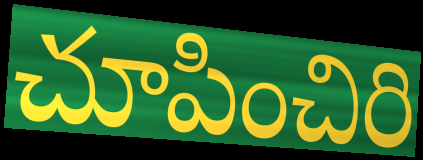
చూపించిరి